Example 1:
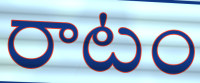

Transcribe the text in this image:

రాటం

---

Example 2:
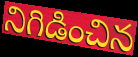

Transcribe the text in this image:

నిగిడించిన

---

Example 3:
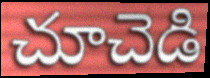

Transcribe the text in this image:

చూచెడి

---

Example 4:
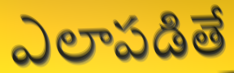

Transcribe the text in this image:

ఎలాపడితే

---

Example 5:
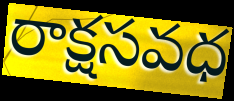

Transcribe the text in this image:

రాక్షసవధ